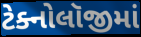
ટેક્નોલૉજીમાં